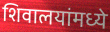
शिवालयांमध्ये